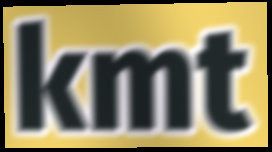
kmt